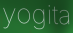
yogita